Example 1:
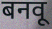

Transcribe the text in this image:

बनवू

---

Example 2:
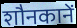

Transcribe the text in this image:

शौनकानें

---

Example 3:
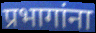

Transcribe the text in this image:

प्रभागांना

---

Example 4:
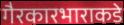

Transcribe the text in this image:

गैरकारभाराकडे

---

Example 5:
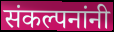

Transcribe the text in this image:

संकल्पनांनी